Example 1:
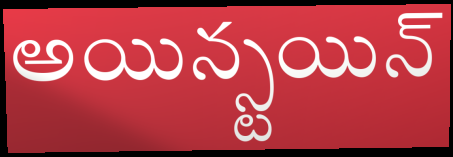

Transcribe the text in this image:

అయిన్స్టయిన్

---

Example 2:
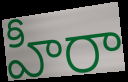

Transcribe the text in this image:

హీరా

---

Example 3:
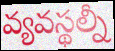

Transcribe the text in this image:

వ్యవస్థల్నీ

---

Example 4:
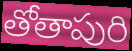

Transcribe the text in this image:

తోతాపురి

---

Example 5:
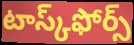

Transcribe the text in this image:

టాస్క్‌ఫోర్స్